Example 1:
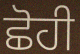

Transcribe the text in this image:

ਛੋਹੀ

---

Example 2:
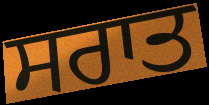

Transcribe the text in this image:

ਸਰਾਤ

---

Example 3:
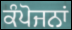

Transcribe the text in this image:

ਕੰਪੋਜਨਾਂ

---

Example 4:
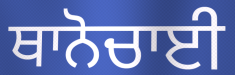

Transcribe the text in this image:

ਥਾਨੋਚਾਈ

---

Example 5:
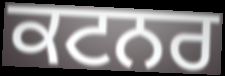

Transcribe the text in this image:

ਕਟਨਰ